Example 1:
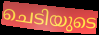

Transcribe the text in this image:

ചെടിയുടെ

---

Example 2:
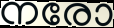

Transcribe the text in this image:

നരോ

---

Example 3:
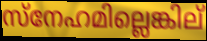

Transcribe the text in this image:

സ്നേഹമില്ലെങ്കില്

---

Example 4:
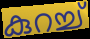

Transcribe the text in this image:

കുറച്ച്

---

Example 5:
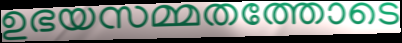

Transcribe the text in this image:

ഉഭയസമ്മതത്തോടെ